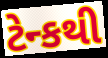
ટેન્કથી